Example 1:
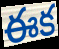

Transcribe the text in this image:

ఈక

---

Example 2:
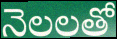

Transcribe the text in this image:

నెలలతో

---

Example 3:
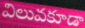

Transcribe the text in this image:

విలువకూడా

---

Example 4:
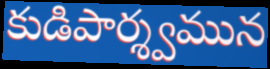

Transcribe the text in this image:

కుడిపార్శ్వమున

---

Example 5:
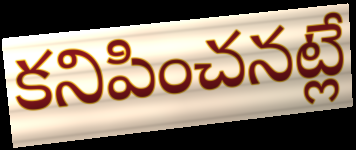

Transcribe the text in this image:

కనిపించనట్లే